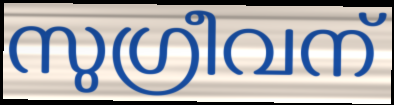
സുഗ്രീവന്